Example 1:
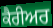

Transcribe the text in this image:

ਕੈਰੀਅਰ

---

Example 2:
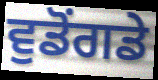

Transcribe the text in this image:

ਵੁਡੋਂਗਡੇ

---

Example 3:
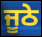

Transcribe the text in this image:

ਜੂਠੇ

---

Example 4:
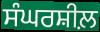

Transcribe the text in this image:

ਸੰਘਰਸ਼ੀਲ਼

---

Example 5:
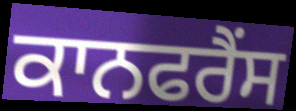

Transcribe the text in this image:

ਕਾਨਫਰੈਂਸ